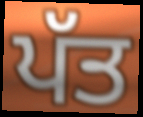
ਪੱਤ